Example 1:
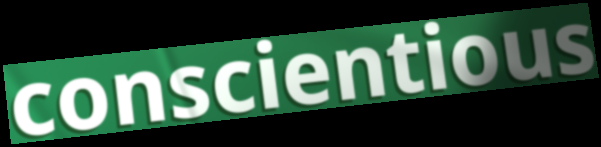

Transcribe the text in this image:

conscientious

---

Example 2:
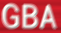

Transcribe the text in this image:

GBA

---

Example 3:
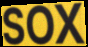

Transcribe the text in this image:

SOX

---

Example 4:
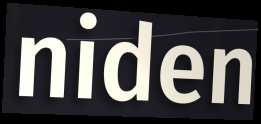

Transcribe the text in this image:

niden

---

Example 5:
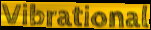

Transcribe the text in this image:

Vibrational